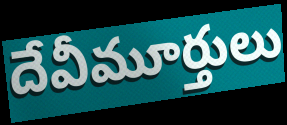
దేవీమూర్తులు